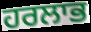
ਹਰਲਾਭ